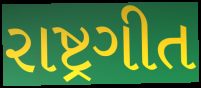
રાષ્ટ્રગીત